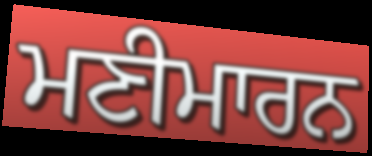
ਮਣੀਮਾਰਨ